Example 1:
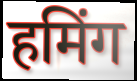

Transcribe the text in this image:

हमिंग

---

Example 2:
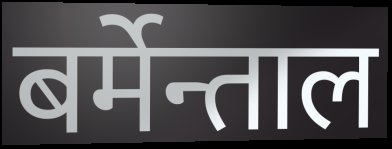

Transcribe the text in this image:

बर्मेन्ताल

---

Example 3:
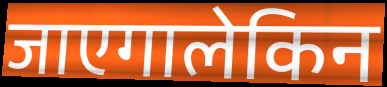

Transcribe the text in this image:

जाएगालेकिन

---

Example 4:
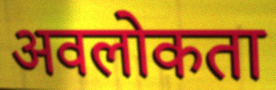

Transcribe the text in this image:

अवलोकता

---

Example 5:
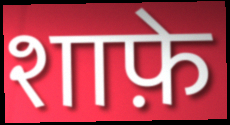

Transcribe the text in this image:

शाफ़े